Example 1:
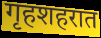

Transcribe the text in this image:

गृहशहरात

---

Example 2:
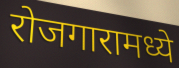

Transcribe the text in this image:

रोजगारामध्ये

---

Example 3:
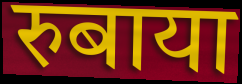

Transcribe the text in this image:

रुबाया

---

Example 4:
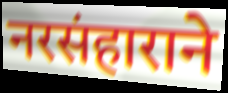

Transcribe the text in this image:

नरसंहाराने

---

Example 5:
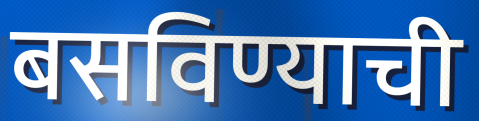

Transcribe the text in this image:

बसविण्याची